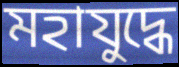
মহাযুদ্ধে